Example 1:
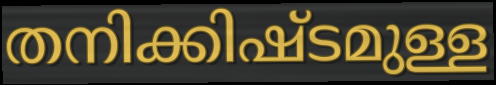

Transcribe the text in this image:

തനിക്കിഷ്ടമുള്ള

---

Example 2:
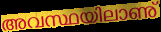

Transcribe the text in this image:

അവസ്ഥയിലാണു്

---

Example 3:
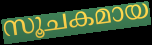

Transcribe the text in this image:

സൂചകമായ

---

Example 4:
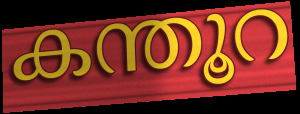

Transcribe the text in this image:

കന്തൂറ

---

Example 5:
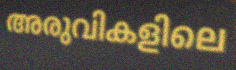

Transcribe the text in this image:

അരുവികളിലെ